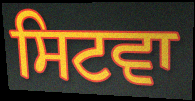
ਸਿਟਵਾ